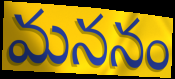
మననం